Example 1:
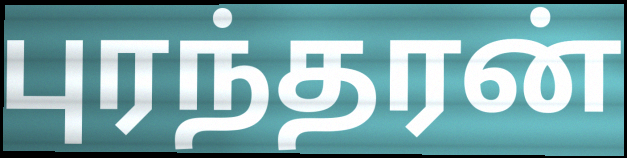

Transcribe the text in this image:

புரந்தரன்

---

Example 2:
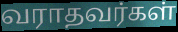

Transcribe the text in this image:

வராதவர்கள்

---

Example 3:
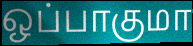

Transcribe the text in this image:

ஒப்பாகுமா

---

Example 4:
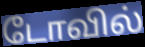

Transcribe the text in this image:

டோவில்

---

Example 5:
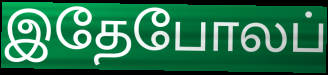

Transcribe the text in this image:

இதேபோலப்